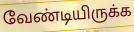
வேண்டியிருக்க